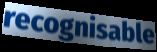
recognisable